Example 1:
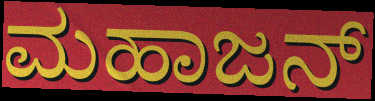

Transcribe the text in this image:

ಮಹಾಜನ್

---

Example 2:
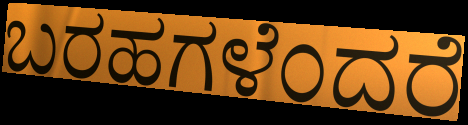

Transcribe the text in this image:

ಬರಹಗಳೆಂದರೆ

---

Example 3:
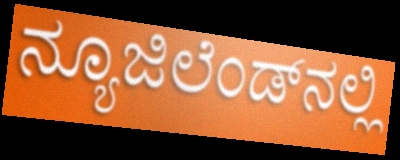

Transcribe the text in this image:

ನ್ಯೂಜಿಲೆಂಡ್‌ನಲ್ಲಿ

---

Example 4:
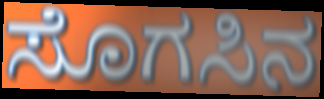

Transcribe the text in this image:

ಸೊಗಸಿನ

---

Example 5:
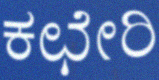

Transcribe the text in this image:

ಕಛೇರಿ